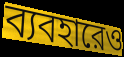
ব্যবহারেও